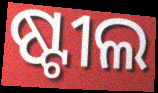
ଷ୍ଟୀଲ